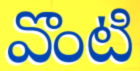
వొంటి